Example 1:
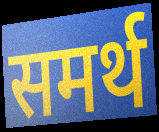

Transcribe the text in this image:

समर्थ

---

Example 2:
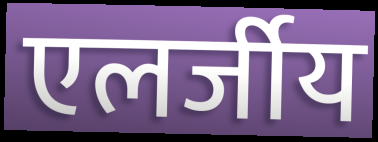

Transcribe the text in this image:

एलर्जीय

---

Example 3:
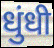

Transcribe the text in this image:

धुंधी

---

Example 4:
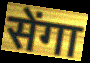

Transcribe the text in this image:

सेंगा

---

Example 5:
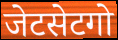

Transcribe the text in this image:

जेटसेटगो